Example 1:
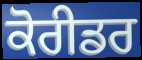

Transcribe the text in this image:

ਕੋਰੀਡਰ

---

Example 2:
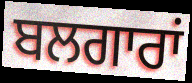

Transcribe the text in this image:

ਬਲਗਾਰਾਂ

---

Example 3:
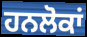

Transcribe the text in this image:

ਹਨਲੋਕਾਂ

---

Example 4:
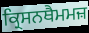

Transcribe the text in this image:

ਕ੍ਰਿਸਨਥੈਮਮਜ਼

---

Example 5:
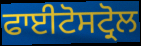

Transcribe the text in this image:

ਫਾਈਟੋਸਟ੍ਰੋਲ